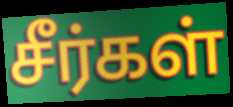
சீர்கள்